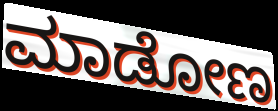
ಮಾಡೋಣ